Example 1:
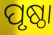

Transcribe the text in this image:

ପୃଷ୍ଠା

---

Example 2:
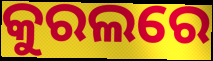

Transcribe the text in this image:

କୁରଲରେ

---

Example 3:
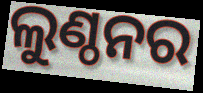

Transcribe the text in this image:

ଲୁଣ୍ଠନର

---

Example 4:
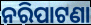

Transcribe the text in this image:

ନରିପାଟଣା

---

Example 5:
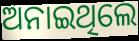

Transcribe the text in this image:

ଅନାଇଥିଲେ